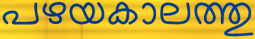
പഴയകാലത്തു